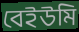
বেইউমি